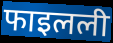
फाइलली